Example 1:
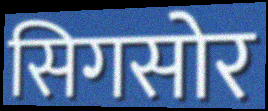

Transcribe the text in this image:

सिगसोर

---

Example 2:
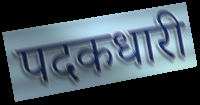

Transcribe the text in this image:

पदकधारी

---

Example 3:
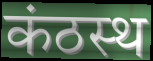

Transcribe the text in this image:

कंठस्थ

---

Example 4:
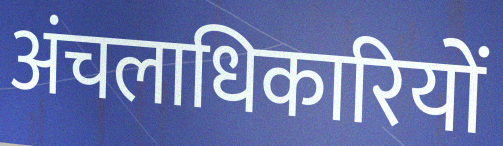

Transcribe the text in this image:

अंचलाधिकारियों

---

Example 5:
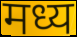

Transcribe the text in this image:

मध्य